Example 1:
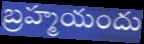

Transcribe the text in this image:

బ్రహ్మయందు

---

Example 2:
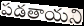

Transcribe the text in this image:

పడతాయని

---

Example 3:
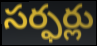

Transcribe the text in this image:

సర్ఫర్లు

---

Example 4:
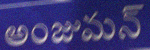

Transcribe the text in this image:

అంజుమన్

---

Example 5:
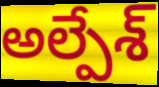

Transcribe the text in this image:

అల్పేశ్